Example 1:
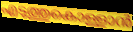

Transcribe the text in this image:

എടുത്തുകൊള്ളാൻ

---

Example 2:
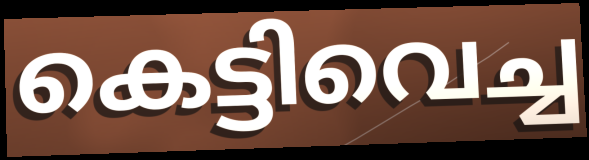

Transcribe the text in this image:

കെട്ടിവെച്ച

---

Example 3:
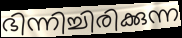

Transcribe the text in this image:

ഭിന്നിച്ചിരിക്കുന്ന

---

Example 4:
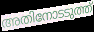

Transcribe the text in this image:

അതിനോടടുത്ത്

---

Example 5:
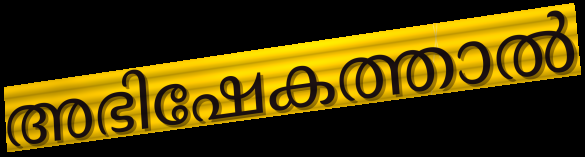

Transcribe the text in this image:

അഭിഷേകത്താൽ